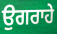
ਉਗਰਾਹੇ